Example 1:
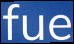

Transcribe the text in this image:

fue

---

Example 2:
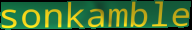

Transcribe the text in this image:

sonkamble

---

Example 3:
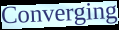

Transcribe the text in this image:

Converging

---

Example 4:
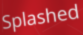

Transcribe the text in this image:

Splashed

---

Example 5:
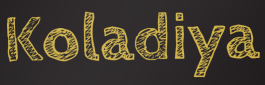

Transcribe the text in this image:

Koladiya